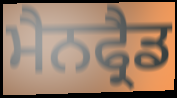
ਮੈਨਫ੍ਰੈਡ